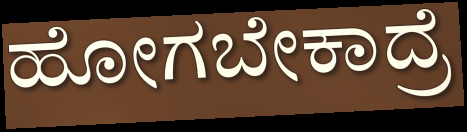
ಹೋಗಬೇಕಾದ್ರೆ